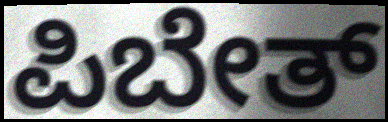
ಪಿಬೇತ್